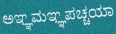
ಅಞ್ಞಮಞ್ಞಪಚ್ಚಯಾ